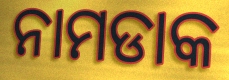
ନାମଡାକ